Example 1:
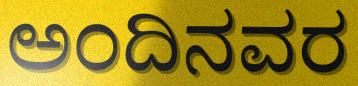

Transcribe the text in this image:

ಅಂದಿನವರ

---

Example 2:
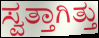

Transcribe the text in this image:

ಸ್ವತ್ತಾಗಿತ್ತು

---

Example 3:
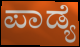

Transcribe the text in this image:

ಪಾಡ್ಯೆ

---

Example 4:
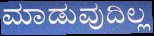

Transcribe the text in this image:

ಮಾಡುವುದಿಲ್ಲ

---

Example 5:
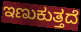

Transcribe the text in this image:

ಇಣುಕುತ್ತದೆ